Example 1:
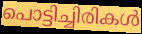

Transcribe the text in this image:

പൊട്ടിച്ചിരികൾ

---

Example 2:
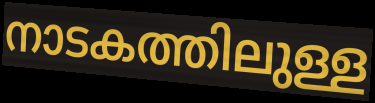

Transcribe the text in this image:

നാടകത്തിലുള്ള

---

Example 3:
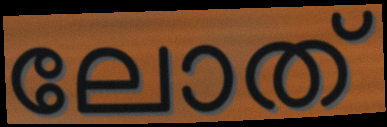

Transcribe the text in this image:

ലോത്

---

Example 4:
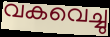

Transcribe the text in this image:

വകവെച്ചു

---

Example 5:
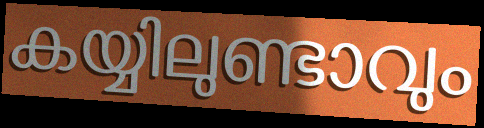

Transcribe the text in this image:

കയ്യിലുണ്ടാവും